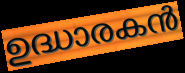
ഉദ്ധാരകൻ